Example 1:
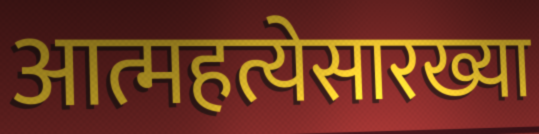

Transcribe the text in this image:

आत्महत्येसारख्या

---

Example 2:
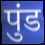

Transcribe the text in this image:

पुंड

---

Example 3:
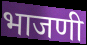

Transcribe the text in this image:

भाजणी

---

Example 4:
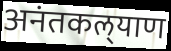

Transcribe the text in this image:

अनंतकल्याण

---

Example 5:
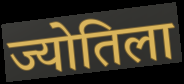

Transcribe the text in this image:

ज्योतिला